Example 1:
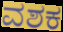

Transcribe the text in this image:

ವಶಕ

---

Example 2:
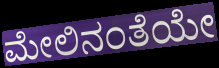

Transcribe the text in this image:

ಮೇಲಿನಂತೆಯೇ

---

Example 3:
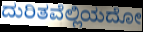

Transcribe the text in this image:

ದುರಿತವೆಲ್ಲಿಯದೋ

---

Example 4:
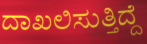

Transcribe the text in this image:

ದಾಖಲಿಸುತ್ತಿದ್ದೆ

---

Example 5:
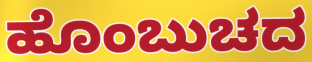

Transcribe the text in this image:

ಹೊಂಬುಚದ